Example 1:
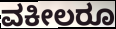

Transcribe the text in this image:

ವಕೀಲರೂ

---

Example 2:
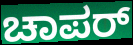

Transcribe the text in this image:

ಚಾಪರ್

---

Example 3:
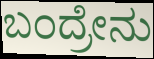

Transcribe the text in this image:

ಬಂದ್ರೇನು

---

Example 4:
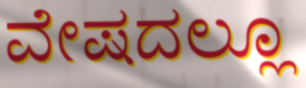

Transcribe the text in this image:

ವೇಷದಲ್ಲೂ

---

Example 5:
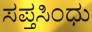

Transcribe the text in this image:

ಸಪ್ತಸಿಂಧು